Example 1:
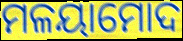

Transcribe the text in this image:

ମଳୟାମୋଦ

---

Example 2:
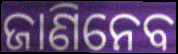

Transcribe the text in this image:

ଜାଣିନେବ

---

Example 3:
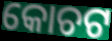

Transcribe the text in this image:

କୋଚଟ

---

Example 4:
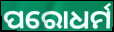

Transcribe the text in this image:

ପରୋଧର୍ମ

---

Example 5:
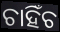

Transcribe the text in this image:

ଚାହିଁଚ